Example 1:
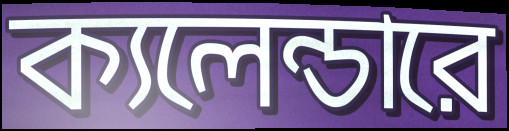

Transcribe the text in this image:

ক্যলেন্ডারে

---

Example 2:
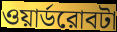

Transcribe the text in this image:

ওয়ার্ডরোবটা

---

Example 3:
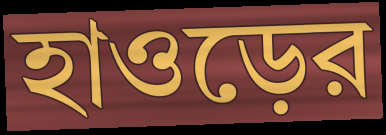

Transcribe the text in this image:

হাওড়ের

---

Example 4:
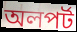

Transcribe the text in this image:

অলপর্ট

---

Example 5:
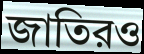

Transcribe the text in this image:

জাতিরও